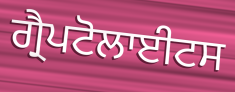
ਗ੍ਰੈਪਟੋਲਾਈਟਸ